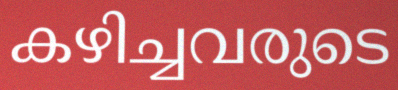
കഴിച്ചവരുടെ